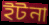
ইটনা